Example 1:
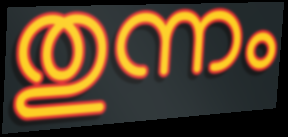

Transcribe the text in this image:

തുന്നം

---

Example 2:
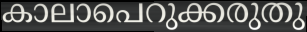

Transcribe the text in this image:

കാലാപെറുക്കരുതു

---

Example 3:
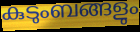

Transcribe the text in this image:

കുടുംബങ്ങളും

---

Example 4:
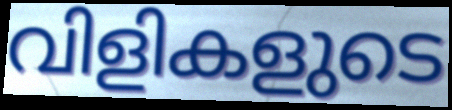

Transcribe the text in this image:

വിളികളുടെ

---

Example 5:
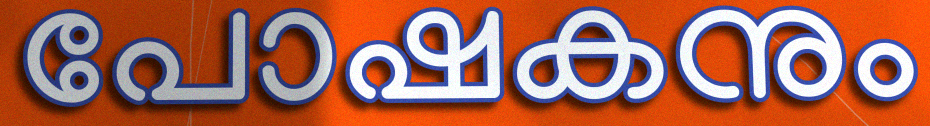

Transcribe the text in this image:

പോഷകനും